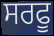
ਸਰਫੂ